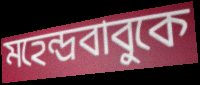
মহেন্দ্রবাবুকে